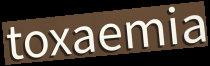
toxaemia